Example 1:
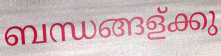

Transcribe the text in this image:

ബന്ധങ്ങള്ക്കു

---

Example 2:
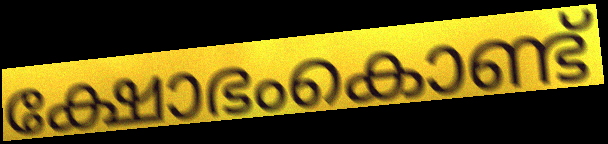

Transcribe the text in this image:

ക്ഷോഭംകൊണ്ട്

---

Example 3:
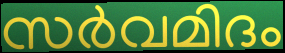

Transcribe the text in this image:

സർവമിദം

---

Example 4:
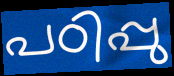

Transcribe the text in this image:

പഠിപ്പു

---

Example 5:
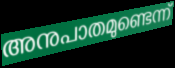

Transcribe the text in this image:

അനുപാതമുണ്ടെന്ന്